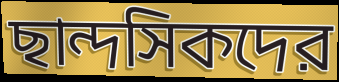
ছান্দসিকদের